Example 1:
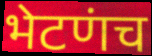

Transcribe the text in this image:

भेटणंच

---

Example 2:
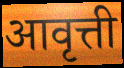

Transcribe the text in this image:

आवृत्ती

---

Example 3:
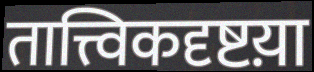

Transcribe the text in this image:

तात्त्विकदृष्टय़ा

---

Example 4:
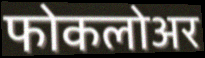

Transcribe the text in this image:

फोकलोअर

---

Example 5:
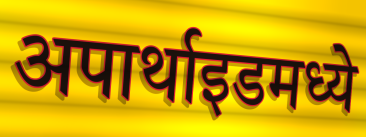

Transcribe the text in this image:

अपार्थाइडमध्ये